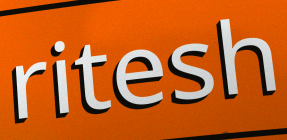
ritesh